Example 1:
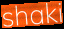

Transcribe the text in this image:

shaki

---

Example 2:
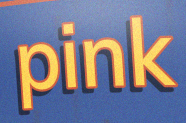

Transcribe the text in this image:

pink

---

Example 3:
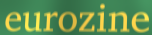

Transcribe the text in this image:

eurozine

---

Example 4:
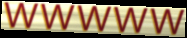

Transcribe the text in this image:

wwwww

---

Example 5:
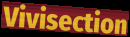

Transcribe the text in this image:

Vivisection